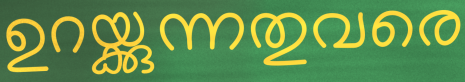
ഉറയ്ക്കുന്നതുവരെ